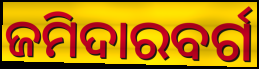
ଜମିଦାରବର୍ଗ